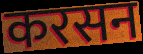
करसन